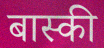
बास्की